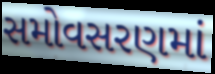
સમોવસરણમાં